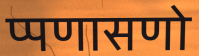
प्पणासणो